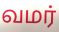
வமர்